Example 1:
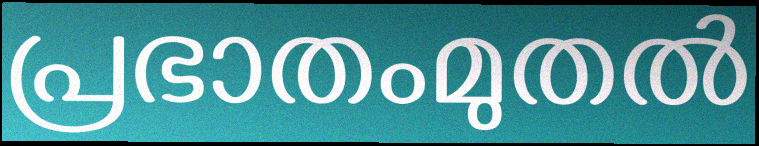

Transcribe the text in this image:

പ്രഭാതംമുതൽ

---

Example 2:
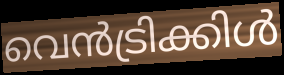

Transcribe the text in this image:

വെൻട്രിക്കിൾ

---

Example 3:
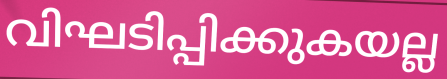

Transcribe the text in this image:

വിഘടിപ്പിക്കുകയല്ല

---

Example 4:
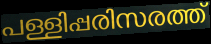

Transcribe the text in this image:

പള്ളിപ്പരിസരത്ത്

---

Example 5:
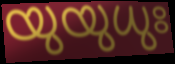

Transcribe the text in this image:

യുയുധുഃ